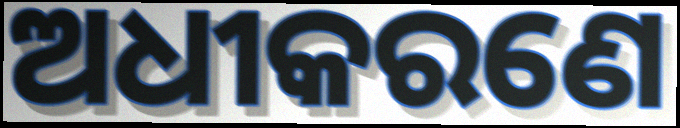
ଅଧୀକରଣେ